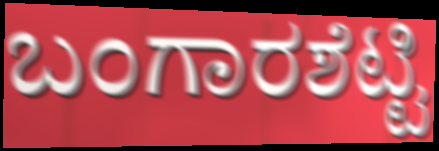
ಬಂಗಾರಶೆಟ್ಟಿ